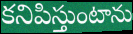
కనిపిస్తుంటాను